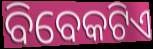
ବିବେକଟିଏ